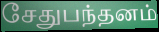
சேதுபந்தனம்